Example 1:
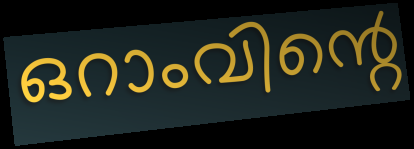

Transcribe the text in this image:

ഒറാംവിന്റെ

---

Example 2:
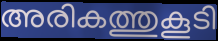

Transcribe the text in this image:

അരികത്തുകൂടി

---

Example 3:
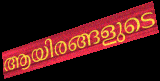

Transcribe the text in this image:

ആയിരങ്ങളുടെ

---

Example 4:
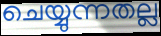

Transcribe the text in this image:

ചെയ്യുന്നതല്ല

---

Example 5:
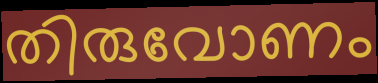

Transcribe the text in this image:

തിരുവോണം